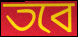
তবে